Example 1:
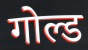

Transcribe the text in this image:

गोल्ड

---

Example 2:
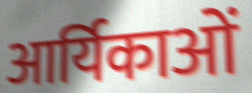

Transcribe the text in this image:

आर्यिकाओं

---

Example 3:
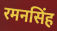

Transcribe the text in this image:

रमनसिंह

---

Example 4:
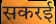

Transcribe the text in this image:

सकरई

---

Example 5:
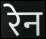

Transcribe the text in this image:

रेन